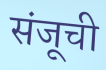
संजूची